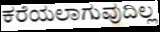
ಕರೆಯಲಾಗುವುದಿಲ್ಲ